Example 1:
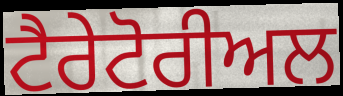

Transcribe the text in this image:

ਟੈਰੇਟੋਰੀਅਲ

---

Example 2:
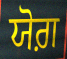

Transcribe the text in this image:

ਯੋਗ਼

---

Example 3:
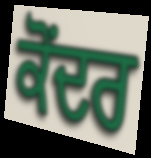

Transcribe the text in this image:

ਕੋਂਦਰ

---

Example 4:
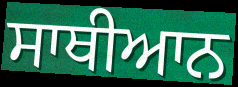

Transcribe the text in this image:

ਸਾਥੀਆਨ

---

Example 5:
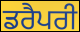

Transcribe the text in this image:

ਡਰੈਪਰੀ